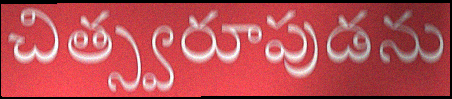
చిత్స్వరూపుడను